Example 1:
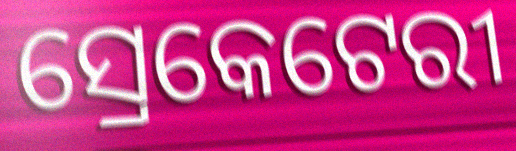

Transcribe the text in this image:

ସ୍ରେକେଟେରୀ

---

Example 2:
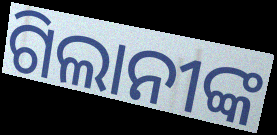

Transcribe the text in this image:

ଗିଲାନୀଙ୍କ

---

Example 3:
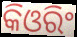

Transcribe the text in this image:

କିଓରିଂ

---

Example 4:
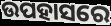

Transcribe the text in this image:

ଉପହାସରେ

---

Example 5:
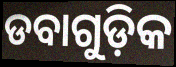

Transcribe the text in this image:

ଡବାଗୁଡ଼ିକ